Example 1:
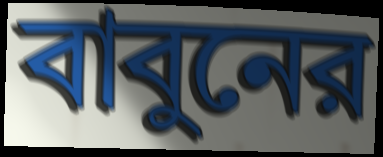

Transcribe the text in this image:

বাবুনের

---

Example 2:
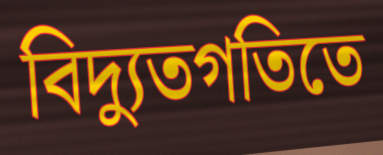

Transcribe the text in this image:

বিদ্যুতগতিতে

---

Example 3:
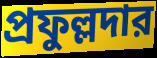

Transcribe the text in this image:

প্রফুল্লদার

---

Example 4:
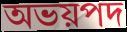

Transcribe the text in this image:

অভয়পদ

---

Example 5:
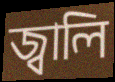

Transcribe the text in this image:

জ্বালি